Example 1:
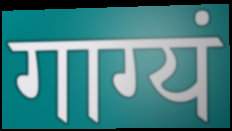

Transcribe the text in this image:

गाग्यं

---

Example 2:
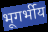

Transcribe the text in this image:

भूगर्भीय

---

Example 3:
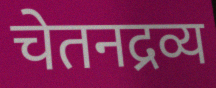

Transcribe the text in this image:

चेतनद्रव्य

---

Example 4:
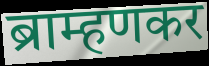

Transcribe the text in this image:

ब्राम्हणकर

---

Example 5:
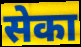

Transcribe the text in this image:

सेका